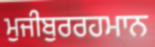
ਮੁਜੀਬੁਰਰਹਮਾਨ